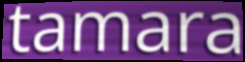
tamara